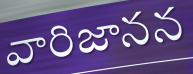
వారిజానన